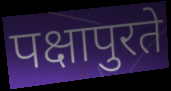
पक्षापुरते